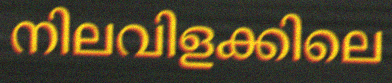
നിലവിളക്കിലെ